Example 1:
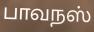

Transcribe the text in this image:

பாவநஸ்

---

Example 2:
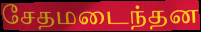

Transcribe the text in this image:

சேதமடைந்தன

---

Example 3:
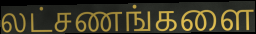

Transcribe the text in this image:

லட்சணங்களை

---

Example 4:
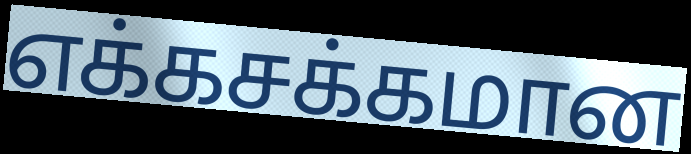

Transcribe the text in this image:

எக்கசக்கமான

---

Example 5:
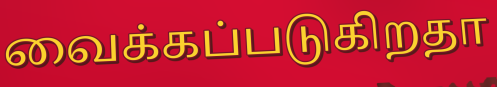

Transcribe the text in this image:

வைக்கப்படுகிறதா